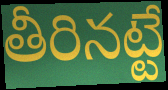
తీరినట్టే